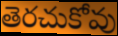
తెరచుకోవు